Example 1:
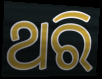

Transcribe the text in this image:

ଥରି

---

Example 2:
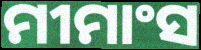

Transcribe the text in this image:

ମୀମାଂସ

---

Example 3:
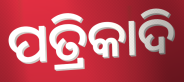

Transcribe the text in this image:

ପତ୍ରିକାଦି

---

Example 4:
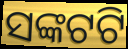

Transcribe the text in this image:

ସଙ୍କଟଟି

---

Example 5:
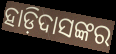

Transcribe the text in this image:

ହାଡ଼ିଦାସଙ୍କର